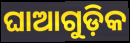
ଘାଆଗୁଡ଼ିକ